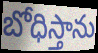
బోధిస్తాను